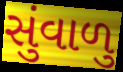
સુંવાળુ